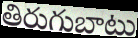
తిరుగుబాటు